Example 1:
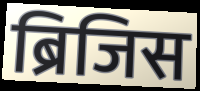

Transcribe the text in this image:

ब्रिजिस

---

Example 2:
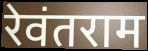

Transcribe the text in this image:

रेवंतराम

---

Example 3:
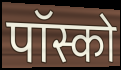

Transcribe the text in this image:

पॉस्को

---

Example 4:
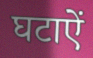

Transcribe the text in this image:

घटाऐं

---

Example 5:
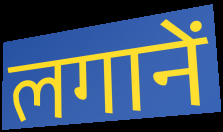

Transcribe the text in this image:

लगानें